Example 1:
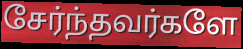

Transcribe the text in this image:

சேர்ந்தவர்களே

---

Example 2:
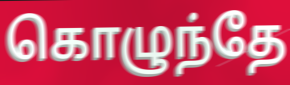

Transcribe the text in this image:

கொழுந்தே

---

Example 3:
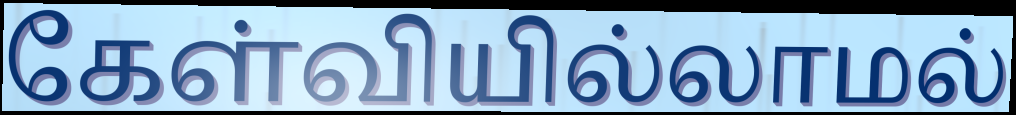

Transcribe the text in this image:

கேள்வியில்லாமல்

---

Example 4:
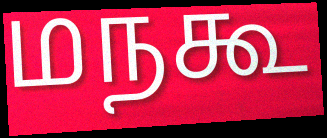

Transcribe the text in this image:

மநகூ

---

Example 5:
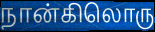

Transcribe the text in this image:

நான்கிலொரு